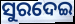
ସୁରଦେଇ